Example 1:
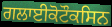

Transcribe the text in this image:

ਗਲਾਈਕੋਟੌਕਸਿਨ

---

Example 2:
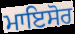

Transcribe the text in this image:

ਮਾਇਸੋਰ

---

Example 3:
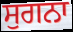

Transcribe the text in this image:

ਸੁਗਨਾ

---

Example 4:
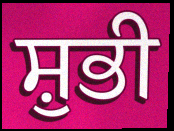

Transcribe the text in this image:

ਸ਼ੁਭੀ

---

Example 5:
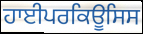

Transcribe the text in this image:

ਹਾਈਪਰਕਿਊਸਿਸ